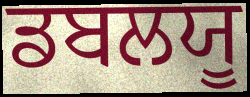
ਡਬਲਯੂ